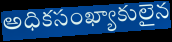
అధికసంఖ్యాకులైన